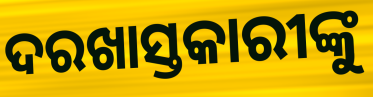
ଦରଖାସ୍ତକାରୀଙ୍କୁ